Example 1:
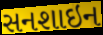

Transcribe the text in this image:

સનશાઇન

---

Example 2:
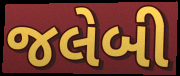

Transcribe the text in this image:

જલેબી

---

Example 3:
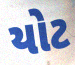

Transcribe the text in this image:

યોટ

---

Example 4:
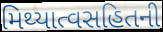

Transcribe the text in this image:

મિથ્યાત્વસહિતની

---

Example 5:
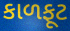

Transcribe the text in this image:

કાળફૂટ